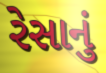
રેસાનું